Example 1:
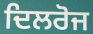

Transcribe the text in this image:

ਦਿਲਰੋਜ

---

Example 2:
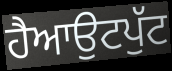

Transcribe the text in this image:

ਹੈਆਉਟਪੁੱਟ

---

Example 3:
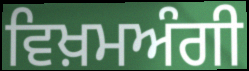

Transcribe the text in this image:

ਵਿਖ਼ਮਅੰਗੀ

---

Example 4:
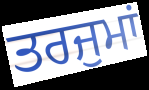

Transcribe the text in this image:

ਤਰਜੁਮਾਂ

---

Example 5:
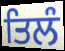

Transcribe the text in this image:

ਤਿਲੰ